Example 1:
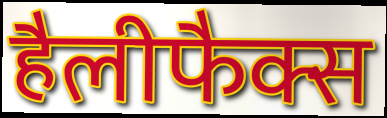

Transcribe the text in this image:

हैलीफैक्स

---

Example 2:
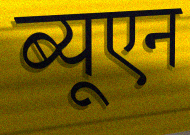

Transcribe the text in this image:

ब्यूएन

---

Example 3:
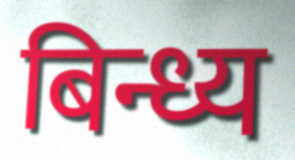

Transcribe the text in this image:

बिन्ध्य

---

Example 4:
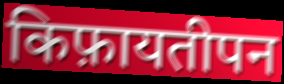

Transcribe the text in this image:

किफ़ायतीपन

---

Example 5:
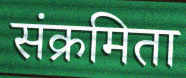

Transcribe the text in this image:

संक्रमिता